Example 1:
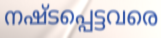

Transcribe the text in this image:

നഷ്ടപ്പെട്ടവരെ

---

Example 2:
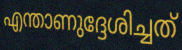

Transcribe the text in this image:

എന്താണുദ്ദേശിച്ചത്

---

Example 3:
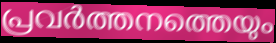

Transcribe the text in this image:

പ്രവർത്തനത്തെയും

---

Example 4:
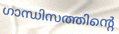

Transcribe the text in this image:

ഗാന്ധിസത്തിന്റെ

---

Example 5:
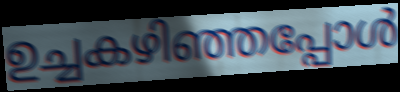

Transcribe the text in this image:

ഉച്ചകഴിഞ്ഞപ്പോൾ